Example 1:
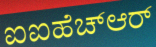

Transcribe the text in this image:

ಐಐಹೆಚ್ಆರ್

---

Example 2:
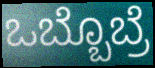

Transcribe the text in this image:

ಒಬ್ಬೊಬ್ರೆ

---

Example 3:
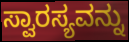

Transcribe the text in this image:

ಸ್ವಾರಸ್ಯವನ್ನು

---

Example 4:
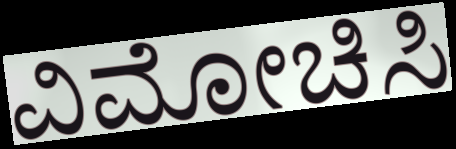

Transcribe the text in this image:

ವಿಮೋಚಿಸಿ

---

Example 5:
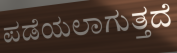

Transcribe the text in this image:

ಪಡೆಯಲಾಗುತ್ತದೆ